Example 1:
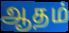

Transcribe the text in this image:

ஆதம்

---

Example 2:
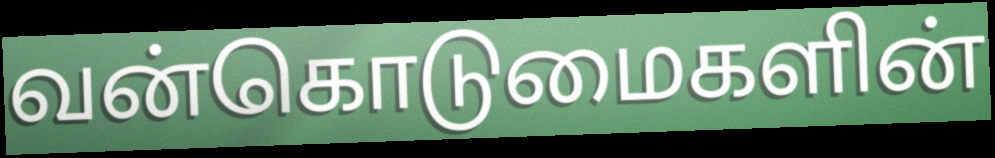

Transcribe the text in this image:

வன்கொடுமைகளின்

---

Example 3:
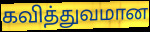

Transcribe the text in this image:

கவித்துவமான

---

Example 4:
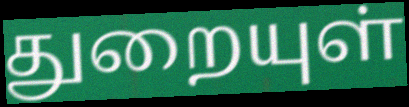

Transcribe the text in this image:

துறையுள்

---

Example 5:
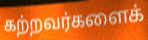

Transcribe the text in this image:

கற்றவர்களைக்